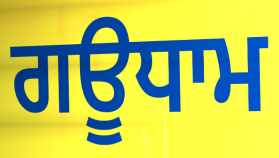
ਗਊਧਾਮ